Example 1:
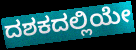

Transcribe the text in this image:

ದಶಕದಲ್ಲಿಯೇ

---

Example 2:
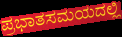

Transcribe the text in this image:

ಪ್ರಭಾತಸಮಯದಲ್ಲಿ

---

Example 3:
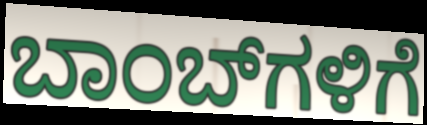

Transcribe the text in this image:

ಬಾಂಬ್‌ಗಳಿಗೆ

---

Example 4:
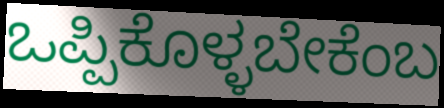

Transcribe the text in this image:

ಒಪ್ಪಿಕೊಳ್ಳಬೇಕೆಂಬ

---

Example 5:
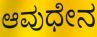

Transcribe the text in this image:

ಆವುಧೇನ